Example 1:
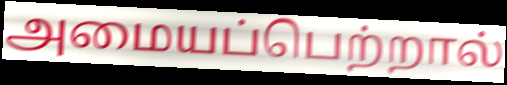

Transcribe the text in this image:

அமையப்பெற்றால்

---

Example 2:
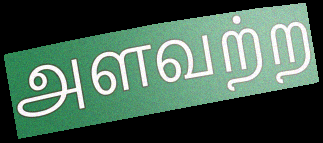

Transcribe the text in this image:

அளவற்ற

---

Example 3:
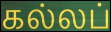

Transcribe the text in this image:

கல்லப்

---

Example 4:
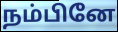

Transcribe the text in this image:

நம்பினே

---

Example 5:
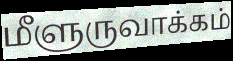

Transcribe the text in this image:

மீளுருவாக்கம்